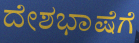
ದೇಶಭಾಷೆಗೆ